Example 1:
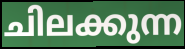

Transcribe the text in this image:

ചിലക്കുന്ന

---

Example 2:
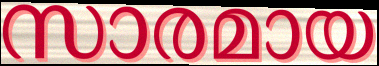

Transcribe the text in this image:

സാരമായ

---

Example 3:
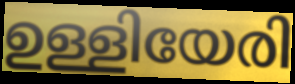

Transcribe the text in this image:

ഉള്ളിയേരി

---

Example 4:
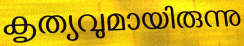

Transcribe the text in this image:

കൃത്യവുമായിരുന്നു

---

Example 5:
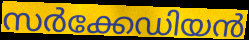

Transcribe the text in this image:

സർക്കേഡിയൻ